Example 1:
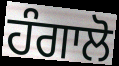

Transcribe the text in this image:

ਹੰਗਾਲੋ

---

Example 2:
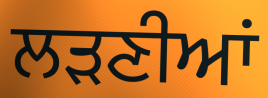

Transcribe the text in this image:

ਲੜਣੀਆਂ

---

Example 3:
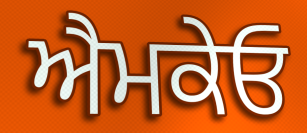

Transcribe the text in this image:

ਐਮਕੇਓ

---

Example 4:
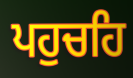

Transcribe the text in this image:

ਪਹੁਚਹਿ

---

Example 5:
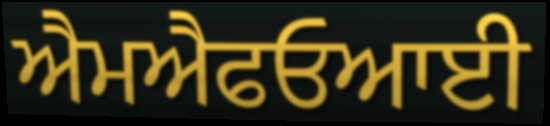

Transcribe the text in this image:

ਐਮਐਫਓਆਈ